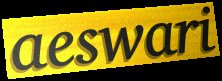
aeswari